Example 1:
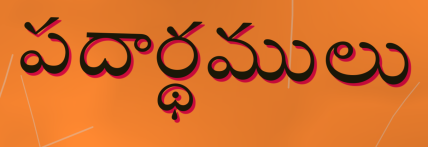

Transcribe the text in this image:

పదార్థములు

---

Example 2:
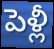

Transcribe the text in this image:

పెళ్లీ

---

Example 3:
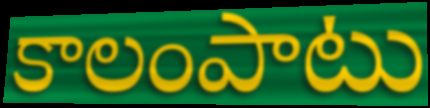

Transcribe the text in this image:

కాలంపాటు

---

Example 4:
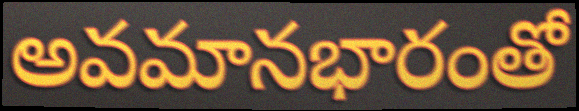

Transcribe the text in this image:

అవమానభారంతో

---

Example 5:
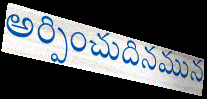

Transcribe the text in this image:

అర్పించుదినమున